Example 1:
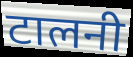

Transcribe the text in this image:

टालनी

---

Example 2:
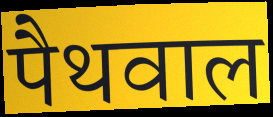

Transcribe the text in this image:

पैथवाल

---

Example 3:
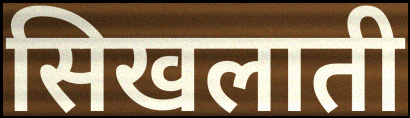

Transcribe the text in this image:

सिखलाती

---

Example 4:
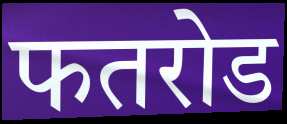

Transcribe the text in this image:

फतरोड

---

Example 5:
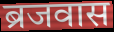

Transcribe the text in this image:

ब्रजवास